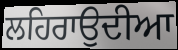
ਲਹਿਰਾਉਦੀਆ